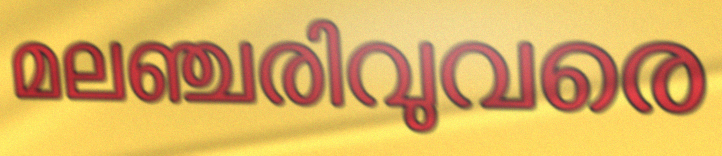
മലഞ്ചരിവുവരെ